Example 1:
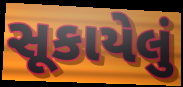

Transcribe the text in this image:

સૂકાયેલું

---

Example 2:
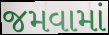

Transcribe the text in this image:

જમવામાં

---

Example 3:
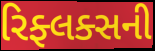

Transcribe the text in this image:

રિફ્લક્સની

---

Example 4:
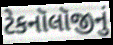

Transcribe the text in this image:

ટેકનૉલૉજીનું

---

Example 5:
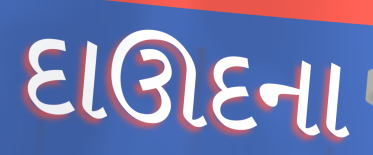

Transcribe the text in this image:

દાઊદના